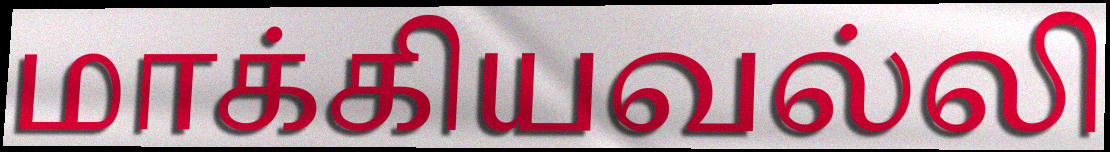
மாக்கியவல்லி